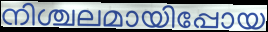
നിശ്ചലമായിപ്പോയ